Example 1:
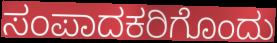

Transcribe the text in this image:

ಸಂಪಾದಕರಿಗೊಂದು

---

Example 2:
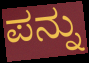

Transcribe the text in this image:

ಪನ್ನು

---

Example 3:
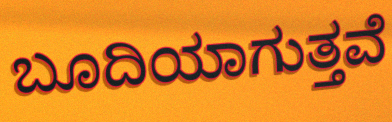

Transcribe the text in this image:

ಬೂದಿಯಾಗುತ್ತವೆ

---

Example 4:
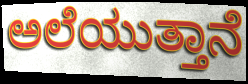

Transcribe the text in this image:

ಅಲೆಯುತ್ತಾನೆ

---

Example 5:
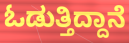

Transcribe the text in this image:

ಓಡುತ್ತಿದ್ದಾನೆ